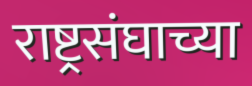
राष्ट्रसंघाच्या